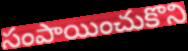
సంపాయించుకొని